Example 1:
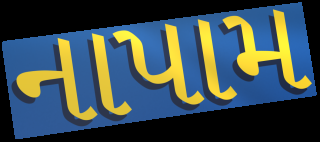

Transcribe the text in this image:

નાપામ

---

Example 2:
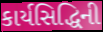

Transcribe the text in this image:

કાર્યસિદ્ધિની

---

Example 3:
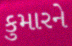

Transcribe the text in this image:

કુમારને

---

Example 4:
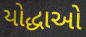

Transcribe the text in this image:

યોદ્ધાઓ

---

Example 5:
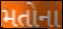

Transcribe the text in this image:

મતોના